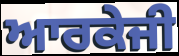
ਆਰਕੇਜੀ